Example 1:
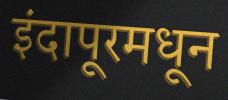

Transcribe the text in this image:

इंदापूरमधून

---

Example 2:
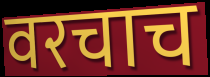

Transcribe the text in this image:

वरचाच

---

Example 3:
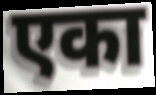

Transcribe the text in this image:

एका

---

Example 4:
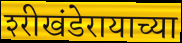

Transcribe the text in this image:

श्रीखंडेरायाच्या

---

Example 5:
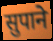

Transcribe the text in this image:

सुपाने